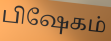
பிஷேகம்